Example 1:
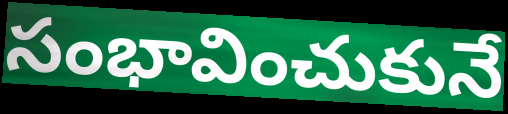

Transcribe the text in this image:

సంభావించుకునే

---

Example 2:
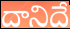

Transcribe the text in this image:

దానిదే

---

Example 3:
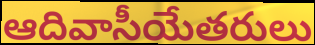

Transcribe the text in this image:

ఆదివాసీయేతరులు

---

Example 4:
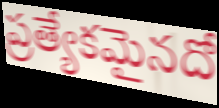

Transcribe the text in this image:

ప్రత్యేకమైనదో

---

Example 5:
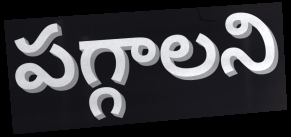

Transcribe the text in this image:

పగ్గాలని